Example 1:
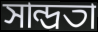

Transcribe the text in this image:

সান্দ্রতা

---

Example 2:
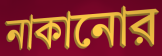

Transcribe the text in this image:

নাকানোর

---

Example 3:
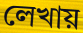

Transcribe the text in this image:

লেখায়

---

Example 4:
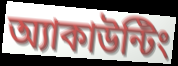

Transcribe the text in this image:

অ্যাকাউন্টিং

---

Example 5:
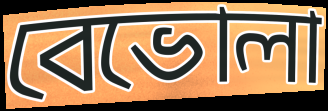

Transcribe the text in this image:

বেভোলা